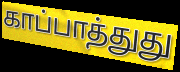
காப்பாத்துது